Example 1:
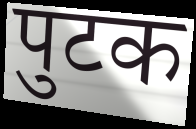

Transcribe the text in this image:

पुटक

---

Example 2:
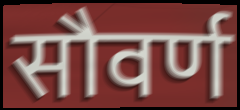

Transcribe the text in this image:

सौवर्ण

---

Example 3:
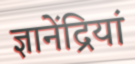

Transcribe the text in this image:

ज्ञानेंद्रियां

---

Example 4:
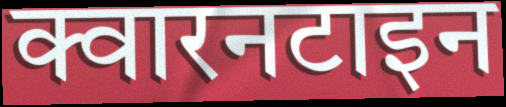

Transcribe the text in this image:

क्वारनटाइन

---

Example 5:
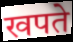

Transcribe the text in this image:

खपते